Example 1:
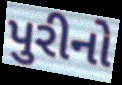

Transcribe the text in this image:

પુરીનો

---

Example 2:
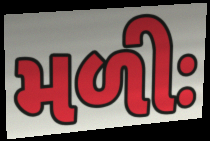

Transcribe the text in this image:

મળીઃ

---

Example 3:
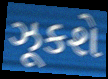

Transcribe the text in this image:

ઝૂકશે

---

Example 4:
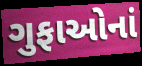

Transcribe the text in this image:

ગુફાઓનાં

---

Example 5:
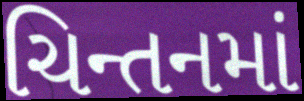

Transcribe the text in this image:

ચિન્તનમાં